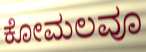
ಕೋಮಲವೂ